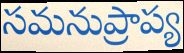
సమనుప్రాప్య